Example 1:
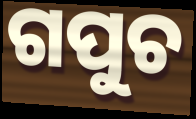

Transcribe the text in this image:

ଗପୁଚ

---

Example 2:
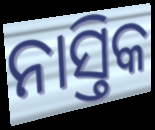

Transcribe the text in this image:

ନାସ୍ତିକ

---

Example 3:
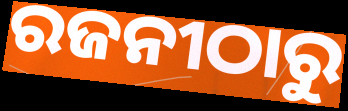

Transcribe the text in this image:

ରଜନୀଠାରୁ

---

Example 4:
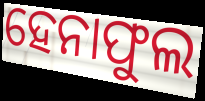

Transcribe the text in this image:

ହେନାଫୁଲ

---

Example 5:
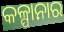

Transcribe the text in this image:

କଳ୍ପାନାର